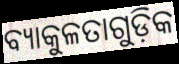
ବ୍ୟାକୁଳତାଗୁଡ଼ିକ